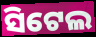
ସିଟେଲ